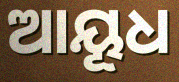
ଆୟୂଧ